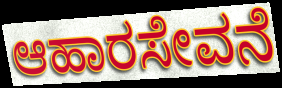
ಆಹಾರಸೇವನೆ